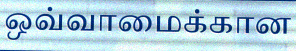
ஒவ்வாமைக்கான